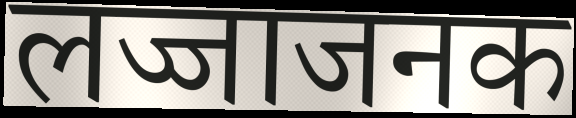
लज्जाजनक